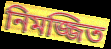
নিমজ্জিত